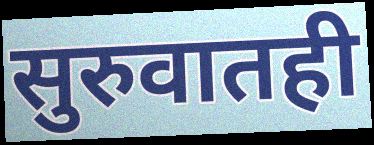
सुरुवातही